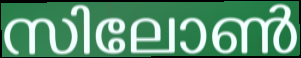
സിലോൺ